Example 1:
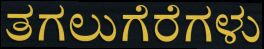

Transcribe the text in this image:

ತಗಲುಗೆರೆಗಳು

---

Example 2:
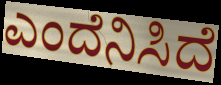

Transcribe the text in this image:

ಎಂದೆನಿಸಿದೆ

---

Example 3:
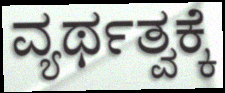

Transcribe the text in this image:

ವ್ಯರ್ಥತ್ವಕ್ಕೆ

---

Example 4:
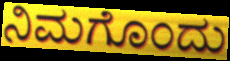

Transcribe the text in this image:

ನಿಮಗೊಂದು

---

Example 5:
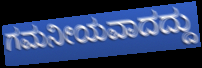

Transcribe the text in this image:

ಗಮನೀಯವಾದದ್ದು